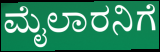
ಮೈಲಾರನಿಗೆ